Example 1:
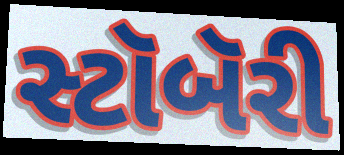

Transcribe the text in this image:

સ્ટૉબૅરી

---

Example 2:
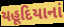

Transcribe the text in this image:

યહૂદિયાનાં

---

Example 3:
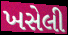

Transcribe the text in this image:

ખસેલી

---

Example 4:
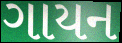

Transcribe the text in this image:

ગાયન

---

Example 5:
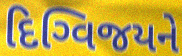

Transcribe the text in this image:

દિગ્વિજયને